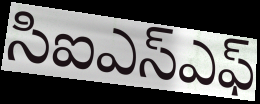
సిఐఎస్ఎఫ్